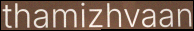
thamizhvaan